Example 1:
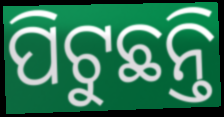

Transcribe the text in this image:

ପିଟୁଛନ୍ତି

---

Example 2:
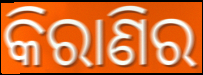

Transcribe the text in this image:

କିରାଣିର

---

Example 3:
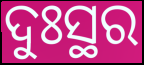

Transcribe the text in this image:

ଦୁଃସ୍ଥର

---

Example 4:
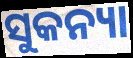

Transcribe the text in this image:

ସୁକନ୍ୟା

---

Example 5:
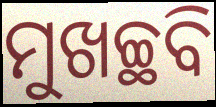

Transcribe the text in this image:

ମୁଖଚ୍ଛବି